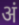
अं